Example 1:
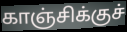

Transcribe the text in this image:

காஞ்சிக்குச்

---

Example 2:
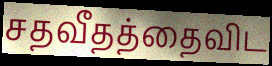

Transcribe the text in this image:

சதவீதத்தைவிட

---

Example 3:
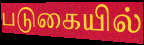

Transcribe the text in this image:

படுகையில்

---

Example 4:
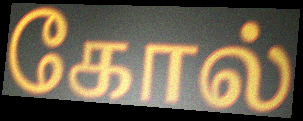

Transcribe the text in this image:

கோல்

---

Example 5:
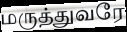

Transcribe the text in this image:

மருத்துவரே